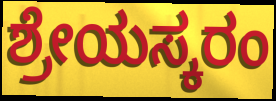
ಶ್ರೇಯಸ್ಕರಂ